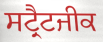
ਸਟ੍ਰੈਟਜੀਕ